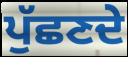
ਪੁੱਛਣਦੇ